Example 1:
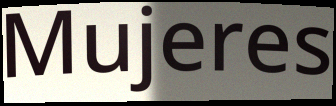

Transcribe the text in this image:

Mujeres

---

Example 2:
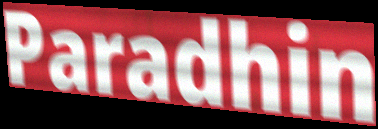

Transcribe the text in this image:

Paradhin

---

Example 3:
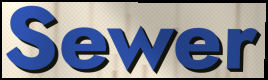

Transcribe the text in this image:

Sewer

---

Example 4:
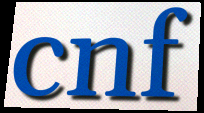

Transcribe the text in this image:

cnf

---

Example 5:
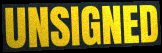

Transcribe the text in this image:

UNSIGNED